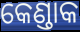
କେଣ୍ଡାକ